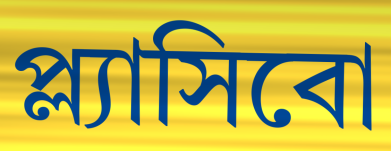
প্ল্যাসিবো